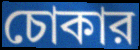
চোকার